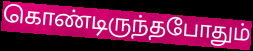
கொண்டிருந்தபோதும்